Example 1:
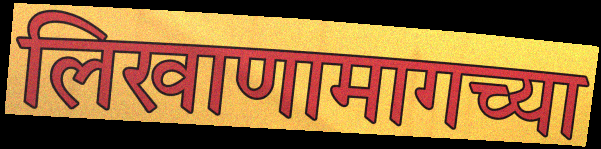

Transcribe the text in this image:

लिखाणामागच्या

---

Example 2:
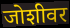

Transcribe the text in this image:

जोशीवर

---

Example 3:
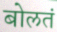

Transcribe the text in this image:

बोलतं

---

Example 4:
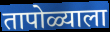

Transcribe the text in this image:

तापोळ्याला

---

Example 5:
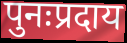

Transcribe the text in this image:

पुनःप्रदाय